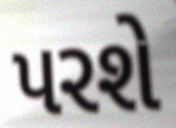
પરશે